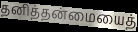
தனித்தன்மையைத்